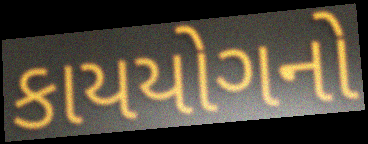
કાયયોગનો